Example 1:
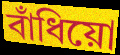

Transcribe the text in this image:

বাঁধিয়ো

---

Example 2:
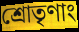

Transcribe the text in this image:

শ্রোতৃণাং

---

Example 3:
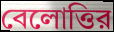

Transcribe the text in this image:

বেলোত্তির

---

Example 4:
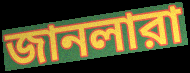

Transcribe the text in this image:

জানলারা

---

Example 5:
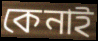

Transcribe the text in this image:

কেনাই